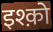
इश्क़ो